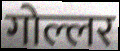
गोल्लर